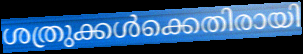
ശത്രുക്കൾക്കെതിരായി